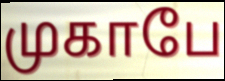
முகாபே